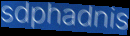
sdphadnis